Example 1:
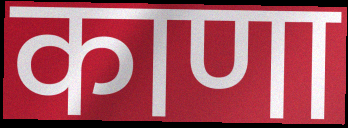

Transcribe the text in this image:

काणा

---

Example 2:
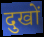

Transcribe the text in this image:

दुखों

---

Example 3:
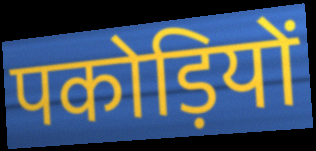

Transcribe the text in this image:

पकोड़ियों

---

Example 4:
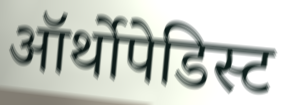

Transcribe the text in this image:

ऑर्थोपेडिस्ट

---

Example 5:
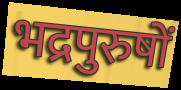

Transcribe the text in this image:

भद्रपुरुषों